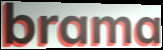
brama